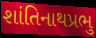
શાંતિનાથપ્રભુ